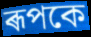
ৰূপকে